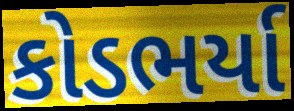
કોડભર્યા